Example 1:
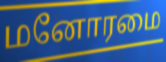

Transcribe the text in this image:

மனோரமை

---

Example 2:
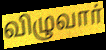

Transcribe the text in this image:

விழுவார்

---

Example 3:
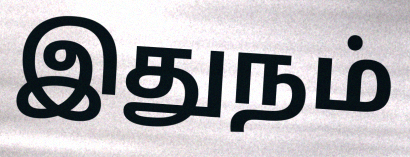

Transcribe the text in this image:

இதுநம்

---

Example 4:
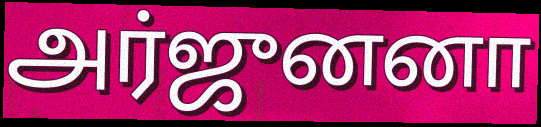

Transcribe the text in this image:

அர்ஜுனனா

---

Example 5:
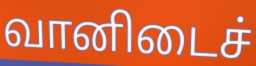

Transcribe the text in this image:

வானிடைச்